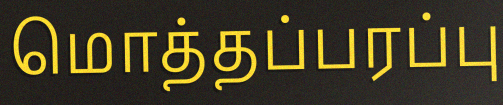
மொத்தப்பரப்பு